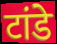
टांडे